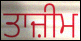
ਤਾਜ਼ੀਮ